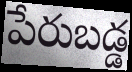
పేరుబడ్డ